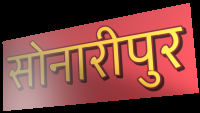
सोनारीपुर